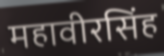
महावीरसिंह